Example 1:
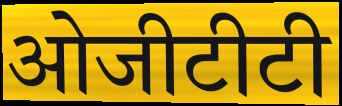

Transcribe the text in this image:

ओजीटीटी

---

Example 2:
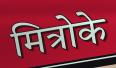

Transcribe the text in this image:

मित्रोके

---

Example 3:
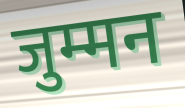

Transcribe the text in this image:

जुम्मन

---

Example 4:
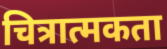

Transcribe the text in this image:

चित्रात्मकता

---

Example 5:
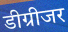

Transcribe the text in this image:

डीग्रीजर